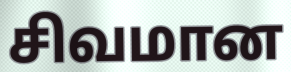
சிவமான